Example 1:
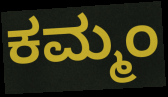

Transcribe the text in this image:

ಕಮ್ಮಂ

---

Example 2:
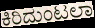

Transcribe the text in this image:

ಕಿರಿದುಂಟಲಾ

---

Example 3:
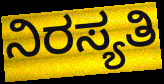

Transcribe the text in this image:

ನಿರಸ್ಯತಿ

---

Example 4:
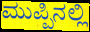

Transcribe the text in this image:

ಮುಪ್ಪಿನಲ್ಲಿ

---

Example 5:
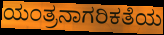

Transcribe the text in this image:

ಯಂತ್ರನಾಗರಿಕತೆಯ